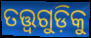
ତତ୍ତ୍ୱଗୁଡ଼ିକୁ